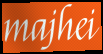
majhei